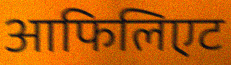
आफिलिएट